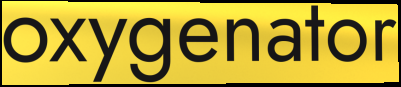
oxygenator